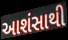
આશંસાથી